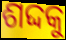
ଶଦ୍ଦକୁ